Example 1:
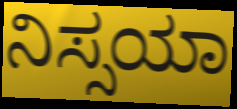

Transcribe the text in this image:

ನಿಸ್ಸಯಾ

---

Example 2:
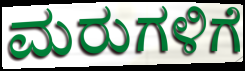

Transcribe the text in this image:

ಮರುಗಳಿಗೆ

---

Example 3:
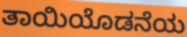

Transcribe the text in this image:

ತಾಯಿಯೊಡನೆಯ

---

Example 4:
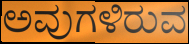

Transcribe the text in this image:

ಅವುಗಳಿರುವ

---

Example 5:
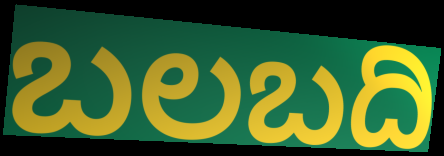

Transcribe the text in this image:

ಬಲಬದಿ